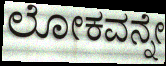
ಲೋಕವನ್ನೇ